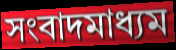
সংবাদমাধ্যম